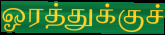
ஓரத்துக்குச்